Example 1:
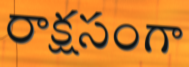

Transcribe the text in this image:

రాక్షసంగా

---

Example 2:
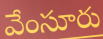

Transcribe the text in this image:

వేంసూరు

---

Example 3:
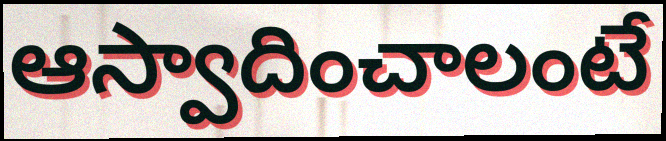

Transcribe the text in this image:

ఆస్వాదించాలంటే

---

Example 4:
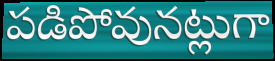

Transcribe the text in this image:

పడిపోవునట్లుగా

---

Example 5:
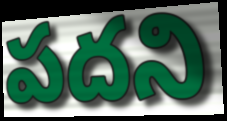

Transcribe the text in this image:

పదని